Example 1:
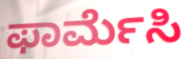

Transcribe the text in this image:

ಫಾರ್ಮೆಸಿ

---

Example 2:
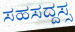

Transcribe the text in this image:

ಸಹಸದ್ದಸ್ಸ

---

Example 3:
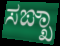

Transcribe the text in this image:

ಸಙ್ಖಾ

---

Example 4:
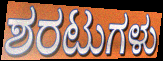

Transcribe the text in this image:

ಶರಟುಗಳು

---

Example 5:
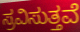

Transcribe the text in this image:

ಸ್ರವಿಸುತ್ತವೆ